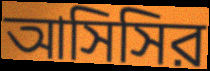
আসিসির